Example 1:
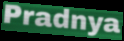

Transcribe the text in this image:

Pradnya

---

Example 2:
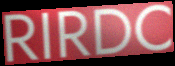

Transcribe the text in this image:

RIRDC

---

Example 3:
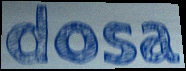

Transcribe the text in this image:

dosa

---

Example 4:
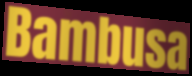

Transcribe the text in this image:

Bambusa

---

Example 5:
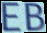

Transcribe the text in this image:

EB